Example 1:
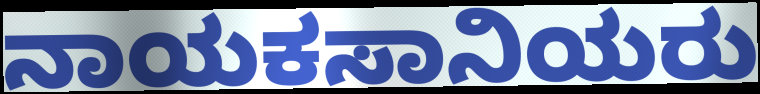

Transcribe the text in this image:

ನಾಯಕಸಾನಿಯರು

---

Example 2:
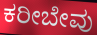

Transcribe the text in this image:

ಕರೀಬೇವು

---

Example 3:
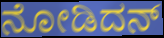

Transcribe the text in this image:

ನೋಡಿದನ್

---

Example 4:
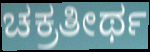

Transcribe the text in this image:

ಚಕ್ರತೀರ್ಥ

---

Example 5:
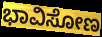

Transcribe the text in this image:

ಭಾವಿಸೋಣ